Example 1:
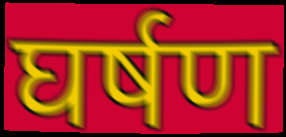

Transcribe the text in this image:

घर्षण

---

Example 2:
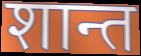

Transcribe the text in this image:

शान्त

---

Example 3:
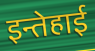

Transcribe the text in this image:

इन्तेहाई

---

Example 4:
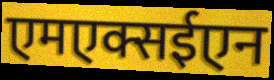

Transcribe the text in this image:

एमएक्सईएन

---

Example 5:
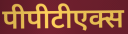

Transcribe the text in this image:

पीपीटीएक्स